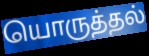
யொருத்தல்